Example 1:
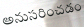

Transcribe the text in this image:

అనుసరించడం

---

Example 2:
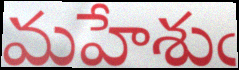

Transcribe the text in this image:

మహేశుఁ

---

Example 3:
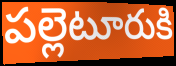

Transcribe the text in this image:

పల్లెటూరుకి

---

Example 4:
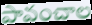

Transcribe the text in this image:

పావంచాల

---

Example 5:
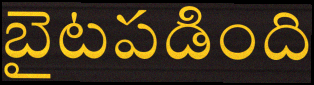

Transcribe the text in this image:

బైటపడింది